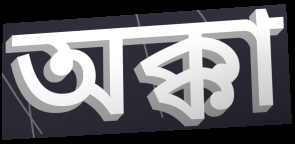
অক্কা